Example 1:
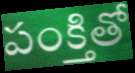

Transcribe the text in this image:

పంక్తితో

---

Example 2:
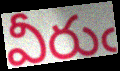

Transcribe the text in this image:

వీరుఁ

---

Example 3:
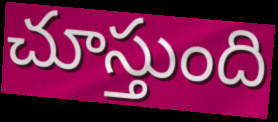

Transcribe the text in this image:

చూస్తుంది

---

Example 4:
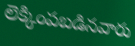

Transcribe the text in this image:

లెక్కింపబడినవారు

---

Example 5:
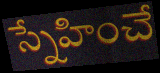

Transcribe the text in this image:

స్నేహించే